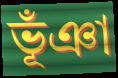
ভূঁঞা